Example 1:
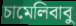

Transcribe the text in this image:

চামেলিবাবু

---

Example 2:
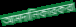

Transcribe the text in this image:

আমদানিকারকরা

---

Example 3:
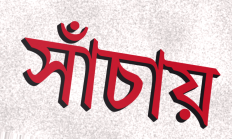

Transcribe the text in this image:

সাঁচায়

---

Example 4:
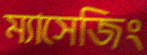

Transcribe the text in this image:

ম্যাসেজিং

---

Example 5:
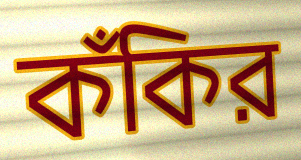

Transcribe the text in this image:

কঁকির